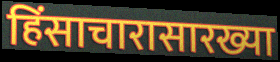
हिंसाचारासारख्या